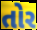
તોર